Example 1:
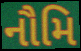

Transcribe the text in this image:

નૌમિ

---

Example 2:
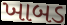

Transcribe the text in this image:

ખાબડ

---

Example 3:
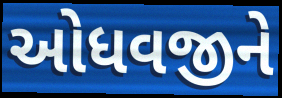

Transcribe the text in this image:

ઓધવજીને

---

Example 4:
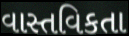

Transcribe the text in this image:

વાસ્તવિકતા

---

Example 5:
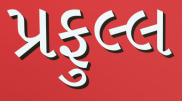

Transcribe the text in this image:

પ્રફુલ્લ